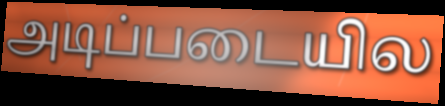
அடிப்படையில